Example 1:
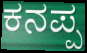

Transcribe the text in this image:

ಕನಪ್ಪ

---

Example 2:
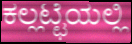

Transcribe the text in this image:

ಕಲ್ಲಟ್ಟೆಯಲ್ಲಿ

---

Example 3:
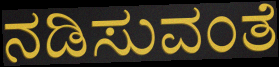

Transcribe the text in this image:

ನಡಿಸುವಂತೆ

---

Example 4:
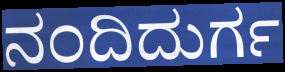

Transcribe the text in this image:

ನಂದಿದುರ್ಗ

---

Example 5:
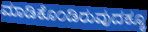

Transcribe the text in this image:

ಮಾಡಿಕೊಂಡಿರುವುದಕ್ಕೂ